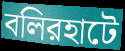
বলিরহাটে